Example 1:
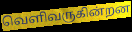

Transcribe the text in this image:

வெளிவருகின்றன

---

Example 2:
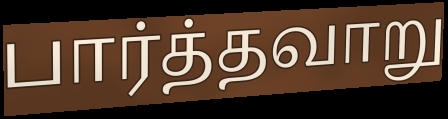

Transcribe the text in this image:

பார்த்தவாறு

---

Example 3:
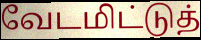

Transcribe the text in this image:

வேடமிட்டுத்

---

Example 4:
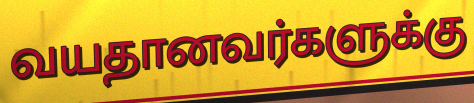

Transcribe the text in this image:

வயதானவர்களுக்கு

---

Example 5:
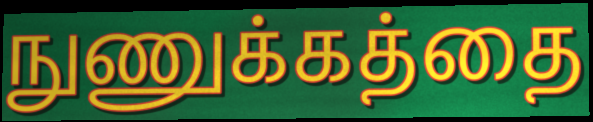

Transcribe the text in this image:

நுணுக்கத்தை